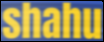
shahu